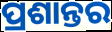
ପ୍ରଶାନ୍ତର